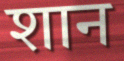
शान